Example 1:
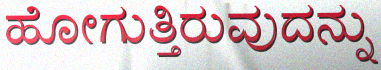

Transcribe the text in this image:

ಹೋಗುತ್ತಿರುವುದನ್ನು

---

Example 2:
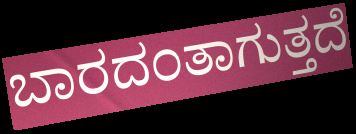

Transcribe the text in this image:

ಬಾರದಂತಾಗುತ್ತದೆ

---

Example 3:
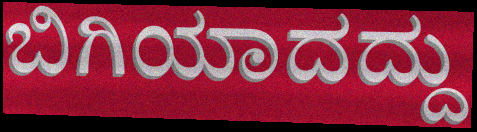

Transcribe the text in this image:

ಬಿಗಿಯಾದದ್ದು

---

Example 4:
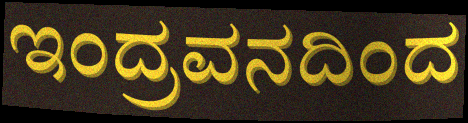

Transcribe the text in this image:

ಇಂದ್ರವನದಿಂದ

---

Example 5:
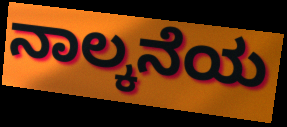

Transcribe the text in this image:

ನಾಲ್ಕನೆಯ